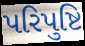
પરિપુષ્ટિ